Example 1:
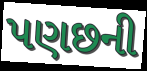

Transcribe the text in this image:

પણછની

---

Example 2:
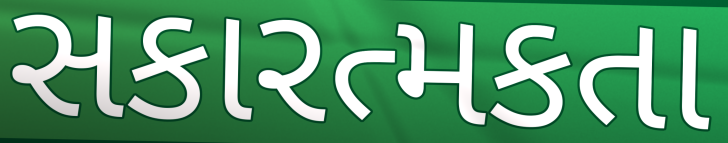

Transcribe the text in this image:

સકારત્મકતા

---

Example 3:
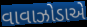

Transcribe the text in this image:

વાવાઝોડાએ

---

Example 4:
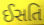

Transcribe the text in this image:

ઈસતિ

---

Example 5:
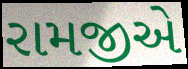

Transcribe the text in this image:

રામજીએ